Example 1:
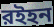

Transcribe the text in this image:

রইহন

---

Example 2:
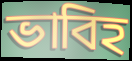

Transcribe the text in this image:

ভাবিহ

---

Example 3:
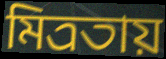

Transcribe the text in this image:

মিত্রতায়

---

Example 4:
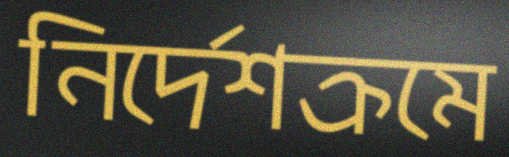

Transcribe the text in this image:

নির্দেশক্রমে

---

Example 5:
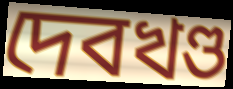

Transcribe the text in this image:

দেবখণ্ড